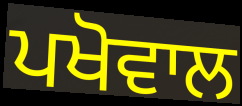
ਪਖੋਵਾਲ